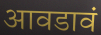
आवडावं